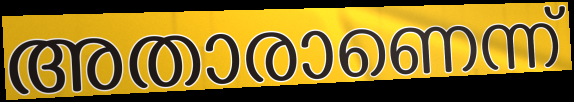
അതാരാണെന്ന്